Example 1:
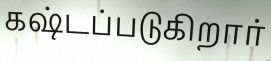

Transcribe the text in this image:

கஷ்டப்படுகிறார்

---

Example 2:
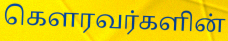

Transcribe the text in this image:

கௌரவர்களின்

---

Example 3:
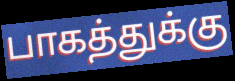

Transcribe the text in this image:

பாகத்துக்கு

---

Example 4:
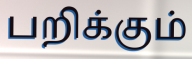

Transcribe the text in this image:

பறிக்கும்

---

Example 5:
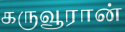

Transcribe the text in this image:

கருவூரான்